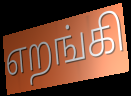
எறங்கி